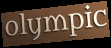
olympic